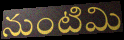
నుంటిమి